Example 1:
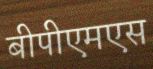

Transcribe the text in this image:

बीपीएमएस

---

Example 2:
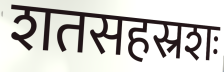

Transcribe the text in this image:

शतसहस्रशः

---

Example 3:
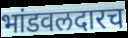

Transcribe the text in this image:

भांडवलदारच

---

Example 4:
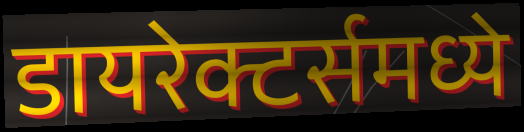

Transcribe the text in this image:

डायरेक्टर्समध्ये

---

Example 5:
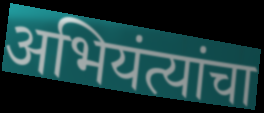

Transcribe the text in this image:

अभियंत्यांचा